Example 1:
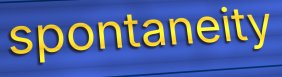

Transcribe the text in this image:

spontaneity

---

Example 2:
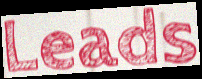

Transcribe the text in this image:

Leads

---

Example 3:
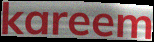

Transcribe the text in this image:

kareem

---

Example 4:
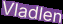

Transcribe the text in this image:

Vladlen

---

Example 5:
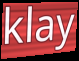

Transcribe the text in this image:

klay